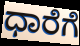
ಧಾರೆಗೆ